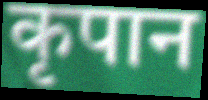
कृपान